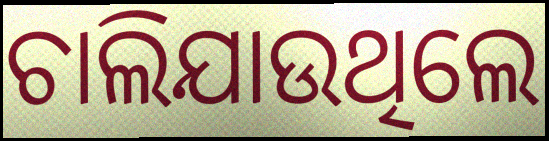
ଚାଲିଯାଉଥିଲେ